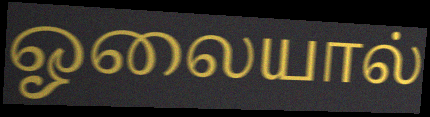
ஓலையால்